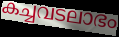
കച്ചവടലാഭം